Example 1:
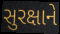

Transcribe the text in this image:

સુરક્ષાને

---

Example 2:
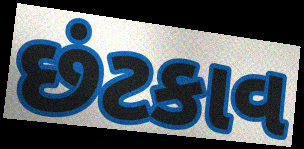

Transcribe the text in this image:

છંટકાવ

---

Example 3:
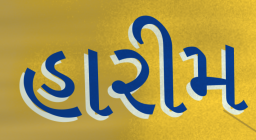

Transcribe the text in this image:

હારીમ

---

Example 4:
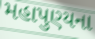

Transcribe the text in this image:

મહાપુણ્યના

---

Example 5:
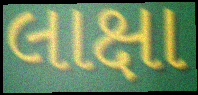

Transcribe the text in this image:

લાક્ષા